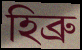
হিব্ৰু